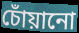
চোঁয়ানো